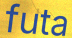
futa